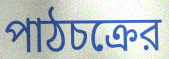
পাঠচক্রের